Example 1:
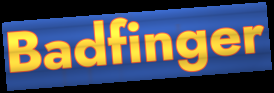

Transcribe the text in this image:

Badfinger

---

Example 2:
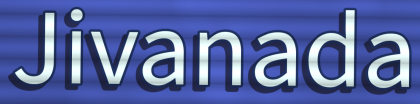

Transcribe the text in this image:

Jivanada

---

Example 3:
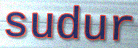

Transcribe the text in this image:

sudur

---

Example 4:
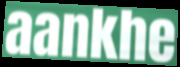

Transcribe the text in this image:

aankhe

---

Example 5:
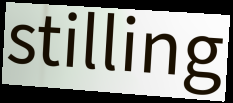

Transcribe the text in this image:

stilling